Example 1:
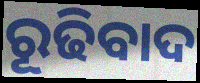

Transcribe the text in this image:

ରୂଢିବାଦ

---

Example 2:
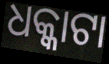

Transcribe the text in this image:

ଧକ୍କାଟା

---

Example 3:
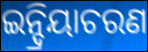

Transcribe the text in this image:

ଇନ୍ଦ୍ରିୟାଚରଣ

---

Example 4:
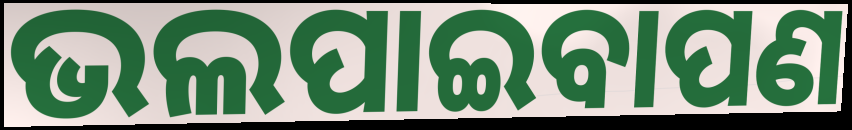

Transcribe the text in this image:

ଭଲପାଇବାପଣ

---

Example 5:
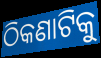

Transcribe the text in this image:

ଠିକଣାଟିକୁ